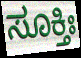
ಸೂಕ್ತಿಃ